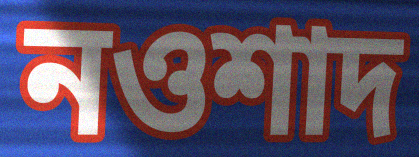
নওশাদ